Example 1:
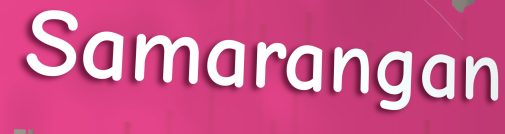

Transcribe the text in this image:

Samarangan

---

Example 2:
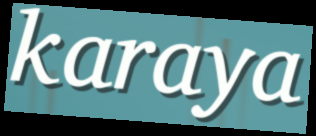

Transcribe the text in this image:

karaya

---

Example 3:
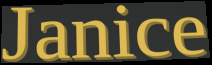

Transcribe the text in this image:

Janice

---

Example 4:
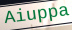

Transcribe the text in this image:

Aiuppa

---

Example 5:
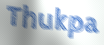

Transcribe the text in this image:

Thukpa